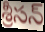
శ్రీసన్